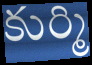
కుర్మి